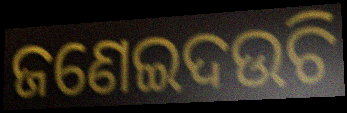
ଜଣେଇଦଉଚି